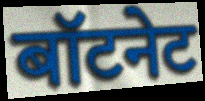
बॉटनेट